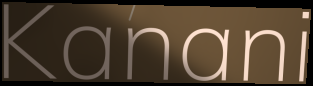
Kanani